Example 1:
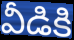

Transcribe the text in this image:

వీడికి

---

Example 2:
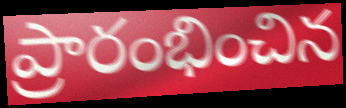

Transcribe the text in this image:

ప్రారంభించిన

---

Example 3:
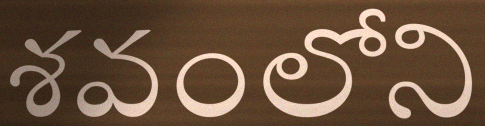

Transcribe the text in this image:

శవంలోని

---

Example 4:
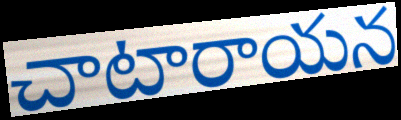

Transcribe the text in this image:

చాటారాయన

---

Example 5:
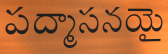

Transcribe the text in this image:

పద్మాసనయై